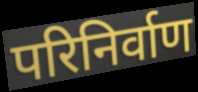
परिनिर्वाण